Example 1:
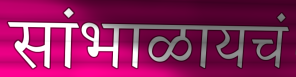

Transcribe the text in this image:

सांभाळायचं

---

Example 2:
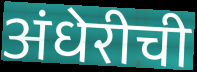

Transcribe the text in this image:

अंधेरीची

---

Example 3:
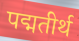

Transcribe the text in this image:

पद्मतीर्थ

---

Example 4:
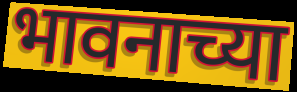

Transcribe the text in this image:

भावनाच्या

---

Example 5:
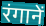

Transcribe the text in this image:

रंगानें